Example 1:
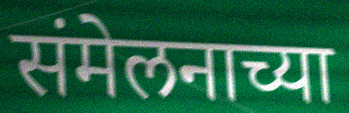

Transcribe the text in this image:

संमेलनाच्या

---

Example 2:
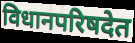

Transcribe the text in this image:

विधानपरिषदेत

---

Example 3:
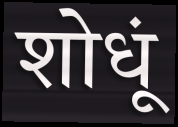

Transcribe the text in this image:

शोधूं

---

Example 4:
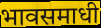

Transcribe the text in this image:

भावसमाधी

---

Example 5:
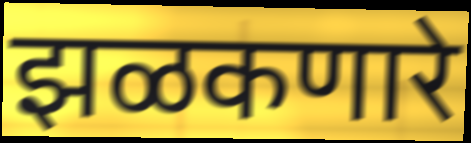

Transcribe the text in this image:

झळकणारे